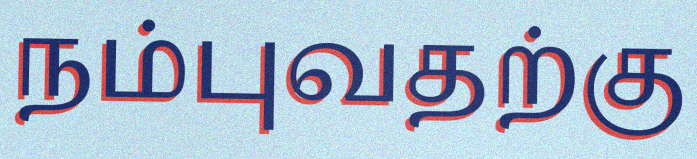
நம்புவதற்கு